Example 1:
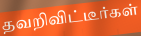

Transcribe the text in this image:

தவறிவிட்டீர்கள்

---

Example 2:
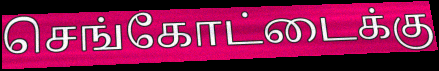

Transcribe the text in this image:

செங்கோட்டைக்கு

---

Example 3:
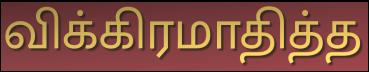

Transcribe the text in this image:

விக்கிரமாதித்த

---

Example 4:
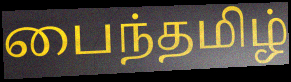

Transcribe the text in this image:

பைந்தமிழ்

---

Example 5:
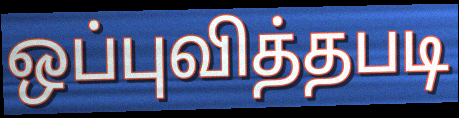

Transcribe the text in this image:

ஒப்புவித்தபடி